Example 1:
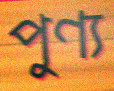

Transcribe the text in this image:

পুণ্য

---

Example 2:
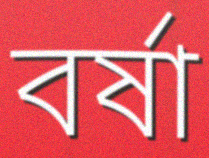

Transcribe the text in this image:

বৰ্ষা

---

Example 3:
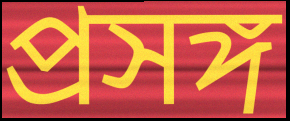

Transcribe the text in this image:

প্ৰসঙ্গ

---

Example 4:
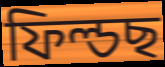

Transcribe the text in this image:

ফিল্ডছ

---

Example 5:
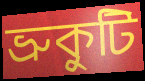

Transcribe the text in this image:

ভ্ৰুকুটি